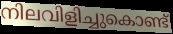
നിലവിളിച്ചുകൊണ്ട്